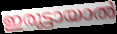
ഇരുട്ടായാൽ